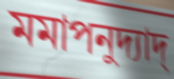
মমাপনুদ্যাদ্